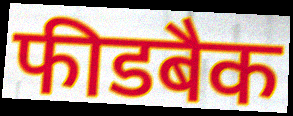
फीडबैक